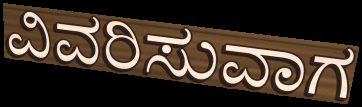
ವಿವರಿಸುವಾಗ